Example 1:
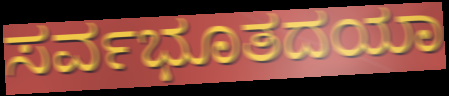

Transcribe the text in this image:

ಸರ್ವಭೂತದಯಾ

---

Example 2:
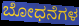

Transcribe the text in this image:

ಬೋಧನೆಗಳ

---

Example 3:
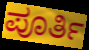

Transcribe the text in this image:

ಪೂರ್ತಿ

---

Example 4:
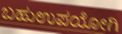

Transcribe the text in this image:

ಬಹುಉಪಯೋಗಿ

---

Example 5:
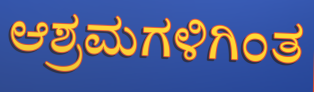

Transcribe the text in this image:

ಆಶ್ರಮಗಳಿಗಿಂತ